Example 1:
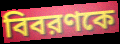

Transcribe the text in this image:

বিবরণকে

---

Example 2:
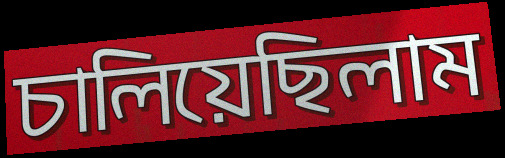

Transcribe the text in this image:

চালিয়েছিলাম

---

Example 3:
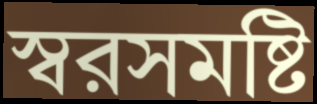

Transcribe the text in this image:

স্বরসমষ্টি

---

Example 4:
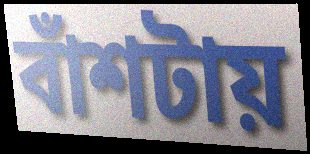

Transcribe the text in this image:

বাঁশটায়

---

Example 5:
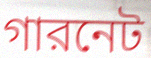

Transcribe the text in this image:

গারনেট